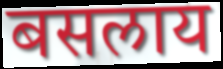
बसलाय